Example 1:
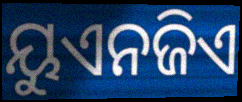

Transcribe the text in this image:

ୟୁଏନଜିଏ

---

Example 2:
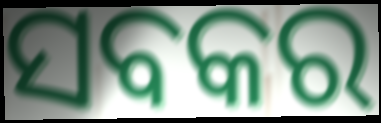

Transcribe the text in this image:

ସବକର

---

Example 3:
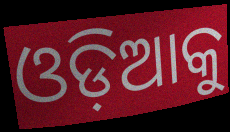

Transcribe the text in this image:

ଓଡ଼ିଆକୁ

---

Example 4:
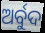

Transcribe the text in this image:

ଅର୍ବୁଦ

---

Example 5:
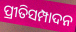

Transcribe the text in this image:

ପ୍ରୀତିସମ୍ପାଦନ